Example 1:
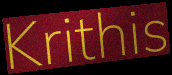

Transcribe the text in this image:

Krithis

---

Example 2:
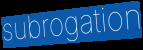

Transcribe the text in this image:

subrogation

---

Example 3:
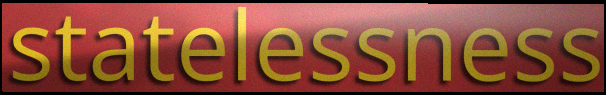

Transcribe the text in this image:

statelessness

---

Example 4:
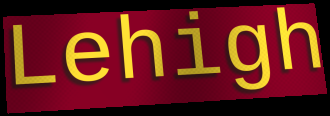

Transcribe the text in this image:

Lehigh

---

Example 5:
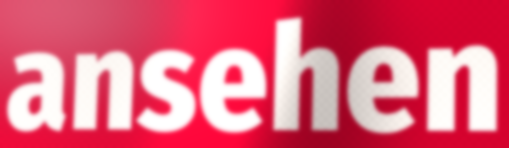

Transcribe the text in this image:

ansehen